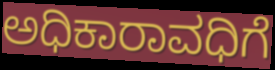
ಅಧಿಕಾರಾವಧಿಗೆ